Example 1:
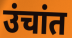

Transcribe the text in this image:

उंचांत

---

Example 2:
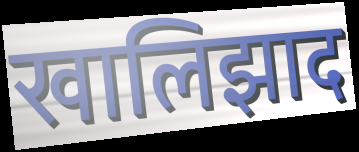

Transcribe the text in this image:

खालिझाद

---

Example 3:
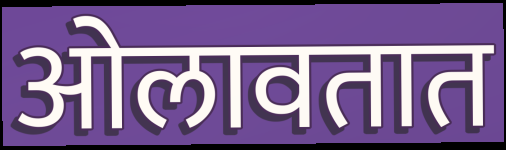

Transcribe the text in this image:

ओलावतात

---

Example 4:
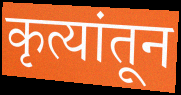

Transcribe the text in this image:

कृत्यांतून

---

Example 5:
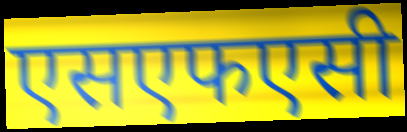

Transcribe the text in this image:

एसएफएसी